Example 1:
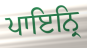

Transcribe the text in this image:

ਪਾਇਨ੍ਰਿ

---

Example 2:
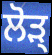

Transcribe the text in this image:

ਲੋੜ੍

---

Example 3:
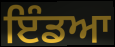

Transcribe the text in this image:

ਇੰਡਆ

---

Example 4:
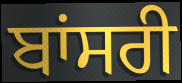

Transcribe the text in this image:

ਬਾਂਸਰੀ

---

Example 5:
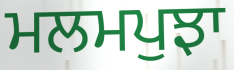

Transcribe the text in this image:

ਮਲਮਪੁਝਾ